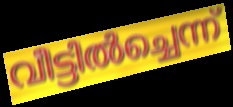
വീട്ടിൽച്ചെന്ന്